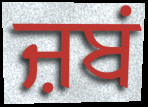
ਜ਼ਬਂ